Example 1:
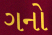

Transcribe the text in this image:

ગનો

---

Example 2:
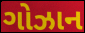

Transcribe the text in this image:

ગોઝાન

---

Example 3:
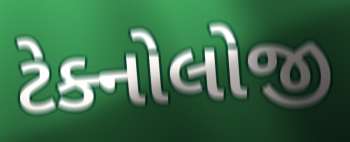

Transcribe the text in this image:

ટેક્નોલોજી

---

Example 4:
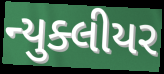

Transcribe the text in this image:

ન્યુક્લીયર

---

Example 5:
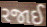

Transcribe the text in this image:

રજાઈ